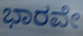
ಭಾರವೇ